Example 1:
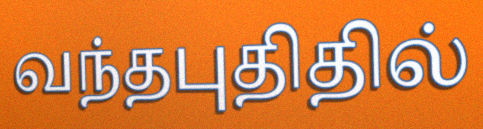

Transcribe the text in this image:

வந்தபுதிதில்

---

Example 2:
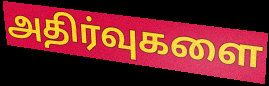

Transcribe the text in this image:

அதிர்வுகளை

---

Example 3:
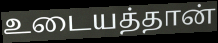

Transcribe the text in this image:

உடையத்தான்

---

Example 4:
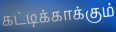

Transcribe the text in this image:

கட்டிக்காக்கும்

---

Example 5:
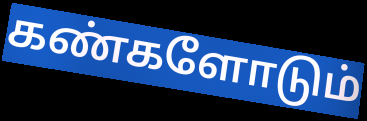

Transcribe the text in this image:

கண்களோடும்